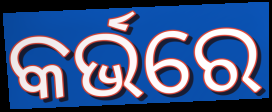
କର୍ଭରେ